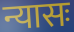
न्यासः